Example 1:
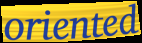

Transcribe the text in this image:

oriented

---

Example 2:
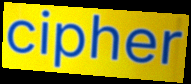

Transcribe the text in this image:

cipher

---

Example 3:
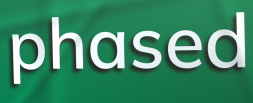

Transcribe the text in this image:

phased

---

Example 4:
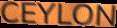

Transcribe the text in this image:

CEYLON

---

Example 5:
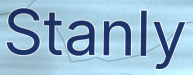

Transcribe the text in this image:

Stanly